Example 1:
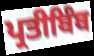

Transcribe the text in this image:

ਪ੍ਰਤੀਬਿੰਬ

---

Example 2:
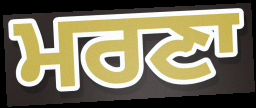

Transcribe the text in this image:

ਮਰਣਾ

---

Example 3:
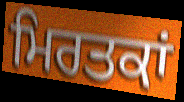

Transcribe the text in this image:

ਮਿਰਤਕਾਂ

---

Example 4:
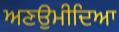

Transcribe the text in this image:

ਅਣਉਮੀਦਿਆ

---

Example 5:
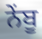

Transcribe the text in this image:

ਨੇਂਬੂ